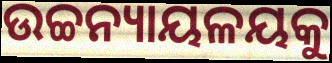
ଉଚ୍ଚନ୍ୟାୟଳୟକୁ